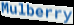
Mulberry